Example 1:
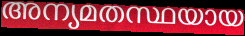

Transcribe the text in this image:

അന്യമതസ്ഥയായ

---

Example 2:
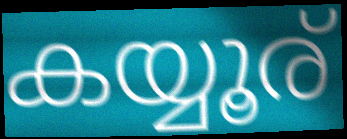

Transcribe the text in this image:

കയ്യൂര്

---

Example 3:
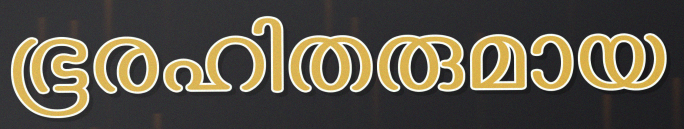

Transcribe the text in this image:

ഭൂരഹിതരുമായ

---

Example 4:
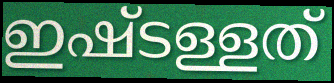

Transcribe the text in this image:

ഇഷ്ടള്ളത്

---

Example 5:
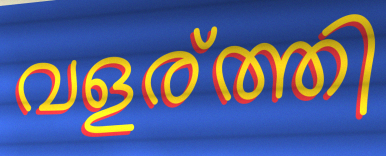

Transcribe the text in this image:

വളര്ത്തി